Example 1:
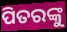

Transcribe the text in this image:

ପିତରଙ୍କୁ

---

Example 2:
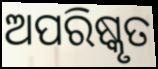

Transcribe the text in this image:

ଅପରିଷ୍କୃତ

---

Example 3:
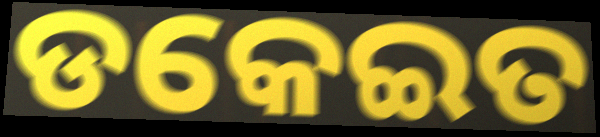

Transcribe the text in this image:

ଡକେଇତ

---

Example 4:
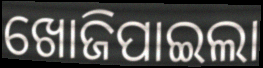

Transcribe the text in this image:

ଖୋଜିପାଇଲା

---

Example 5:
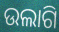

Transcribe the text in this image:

ଉଲାଗି